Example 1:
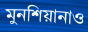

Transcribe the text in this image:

মুনশিয়ানাও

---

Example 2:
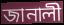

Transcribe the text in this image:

জানালী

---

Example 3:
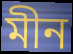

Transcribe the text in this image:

মীন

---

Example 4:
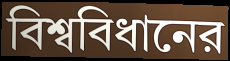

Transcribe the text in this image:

বিশ্ববিধানের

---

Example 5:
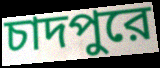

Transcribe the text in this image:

চাদপুরে